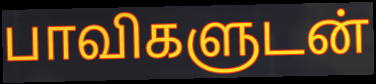
பாவிகளுடன்